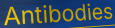
Antibodies